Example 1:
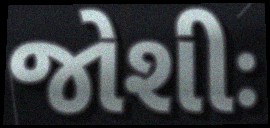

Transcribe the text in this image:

જોશીઃ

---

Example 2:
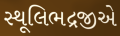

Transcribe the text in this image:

સ્થૂલિભદ્રજીએ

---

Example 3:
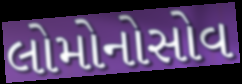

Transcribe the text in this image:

લોમોનોસોવ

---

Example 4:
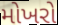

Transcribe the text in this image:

મોખરો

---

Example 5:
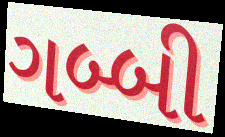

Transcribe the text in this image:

ગબ્બી